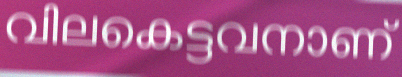
വിലകെട്ടവനാണ്